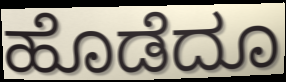
ಹೊಡೆದೂ